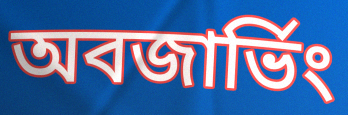
অবজার্ভিং